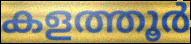
കളത്തൂർ